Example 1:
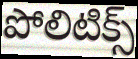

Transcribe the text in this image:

పోలిటిక్స్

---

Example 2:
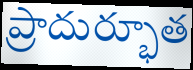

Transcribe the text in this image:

ప్రాదుర్భూత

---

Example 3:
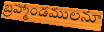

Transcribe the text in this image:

బ్రహ్మాండములనూ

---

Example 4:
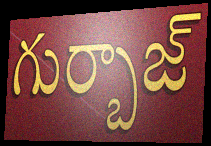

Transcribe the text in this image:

గుర్బాజ్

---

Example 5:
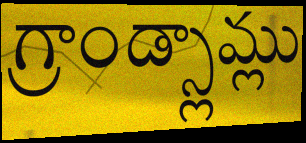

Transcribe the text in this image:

గ్రాండ్స్లామ్లు